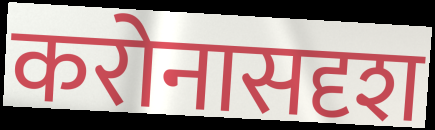
करोनासदृश